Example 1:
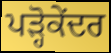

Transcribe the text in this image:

ਪੜ੍ਹੋਕੇਂਦਰ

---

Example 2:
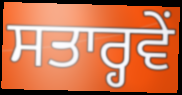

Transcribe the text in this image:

ਸਤਾਰ੍ਹਵੇਂ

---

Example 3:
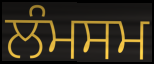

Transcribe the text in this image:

ਲੰਮਸਮ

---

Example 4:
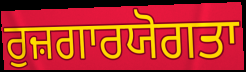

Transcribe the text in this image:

ਰੁਜ਼ਗਾਰਯੋਗਤਾ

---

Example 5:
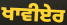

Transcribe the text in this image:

ਖਾਵੀਏਰ